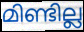
മിണ്ടില്ല